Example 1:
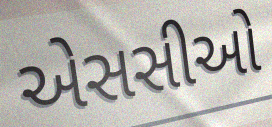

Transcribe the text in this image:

એસસીઓ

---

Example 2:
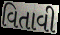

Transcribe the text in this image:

વિતાવી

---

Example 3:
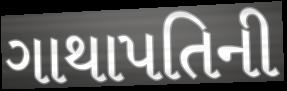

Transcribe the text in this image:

ગાથાપતિની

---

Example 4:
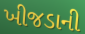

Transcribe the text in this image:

ખીજડાની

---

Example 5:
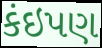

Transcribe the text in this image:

કંઇપણ